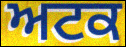
ਅਟਕ